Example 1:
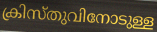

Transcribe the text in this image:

ക്രിസ്തുവിനോടുള്ള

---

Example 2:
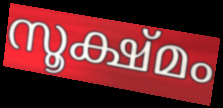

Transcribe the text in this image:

സൂക്ഷ്‌മം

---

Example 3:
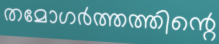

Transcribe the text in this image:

തമോഗർത്തത്തിന്റെ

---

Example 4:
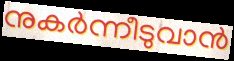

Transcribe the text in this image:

നുകർന്നീടുവാൻ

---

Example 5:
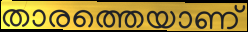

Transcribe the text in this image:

താരത്തെയാണ്